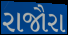
રાજૌરા